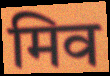
मिव